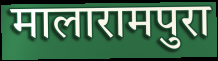
मालारामपुरा